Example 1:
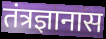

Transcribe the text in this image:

तंत्रज्ञानास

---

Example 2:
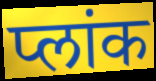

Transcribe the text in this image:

प्लांक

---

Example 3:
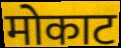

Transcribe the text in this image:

मोकाट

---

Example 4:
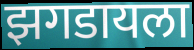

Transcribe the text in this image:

झगडायला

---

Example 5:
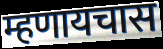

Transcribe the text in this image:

म्हणायचास